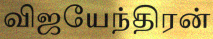
விஜயேந்திரன்